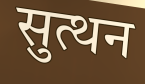
सुत्थन